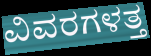
ವಿವರಗಳತ್ತ